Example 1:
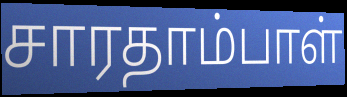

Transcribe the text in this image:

சாரதாம்பாள்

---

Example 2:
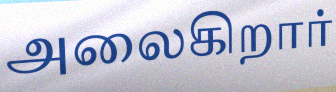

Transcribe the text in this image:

அலைகிறார்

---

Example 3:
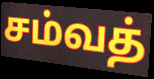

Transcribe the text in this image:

சம்வத்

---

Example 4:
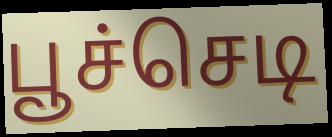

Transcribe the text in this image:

பூச்செடி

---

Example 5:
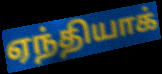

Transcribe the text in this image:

ஏந்தியாக்